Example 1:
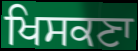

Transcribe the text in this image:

ਖਿਸਕਣਾ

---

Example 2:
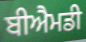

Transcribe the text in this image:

ਬੀਐਮਡੀ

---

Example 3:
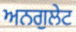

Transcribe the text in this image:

ਅਨਗੁਲੇਟ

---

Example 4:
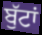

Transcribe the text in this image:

ਬੁੱਟਾਂ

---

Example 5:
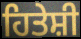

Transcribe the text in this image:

ਹਿਤੇਸ਼ੀ